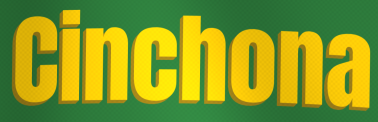
Cinchona